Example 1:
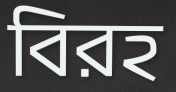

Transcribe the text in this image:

বিরহ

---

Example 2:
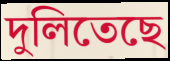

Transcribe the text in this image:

দুলিতেছে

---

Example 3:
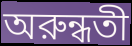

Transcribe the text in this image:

অরুন্ধতী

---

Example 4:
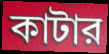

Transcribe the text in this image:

কাটার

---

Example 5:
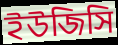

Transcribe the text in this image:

ইউজিসি